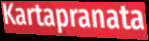
Kartapranata